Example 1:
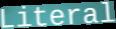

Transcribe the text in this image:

Literal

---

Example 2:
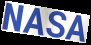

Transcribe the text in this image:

NASA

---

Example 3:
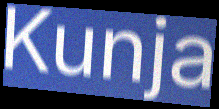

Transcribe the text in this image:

Kunja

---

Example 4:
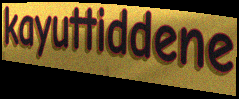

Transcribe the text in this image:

kayuttiddene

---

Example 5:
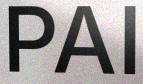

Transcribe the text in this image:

PAI